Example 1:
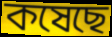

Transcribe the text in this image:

কষেছে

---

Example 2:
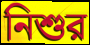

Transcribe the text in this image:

নিশুর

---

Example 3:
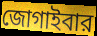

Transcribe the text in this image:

জোগাইবার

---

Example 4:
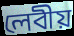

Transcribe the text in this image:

লেবীয়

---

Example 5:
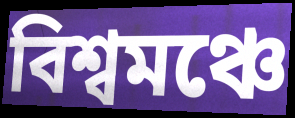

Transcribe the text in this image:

বিশ্বমঞ্চে